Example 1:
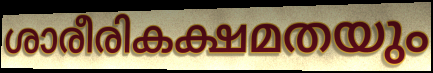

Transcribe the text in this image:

ശാരീരികക്ഷമതയും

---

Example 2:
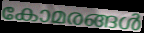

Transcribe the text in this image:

കോമരങ്ങൾ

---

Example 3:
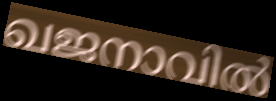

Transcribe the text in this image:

ഖജനാവിൽ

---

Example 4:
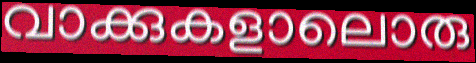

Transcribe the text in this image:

വാക്കുകളാലൊരു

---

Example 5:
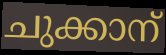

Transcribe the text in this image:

ചുക്കാന്